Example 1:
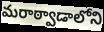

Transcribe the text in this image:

మరాఠ్వాడాలోని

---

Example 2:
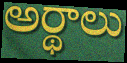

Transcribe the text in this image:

అర్థాలు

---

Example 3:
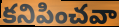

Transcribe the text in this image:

కనిపించవా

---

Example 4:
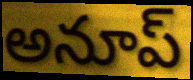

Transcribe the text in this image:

అనూప్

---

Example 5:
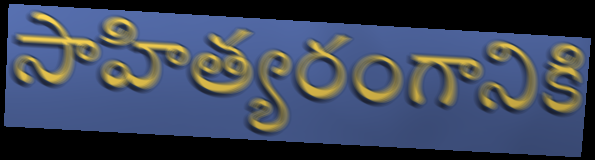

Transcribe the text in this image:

సాహిత్యరంగానికి